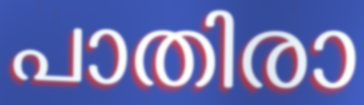
പാതിരാ